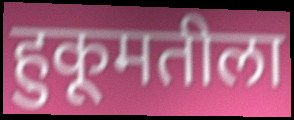
हुकूमतीला